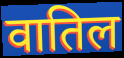
वातिल